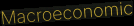
Macroeconomic